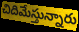
చిదిమేస్తున్నారు